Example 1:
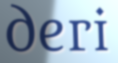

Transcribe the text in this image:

deri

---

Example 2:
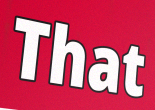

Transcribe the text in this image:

That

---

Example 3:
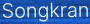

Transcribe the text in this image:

Songkran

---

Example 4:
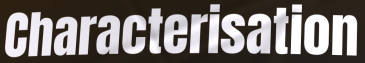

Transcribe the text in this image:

Characterisation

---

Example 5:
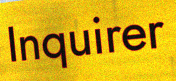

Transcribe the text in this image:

Inquirer